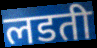
लडती